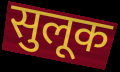
सुलूक